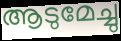
ആടുമേച്ചു